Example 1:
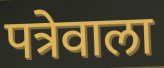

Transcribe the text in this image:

पत्रेवाला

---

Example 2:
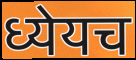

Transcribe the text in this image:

ध्येयच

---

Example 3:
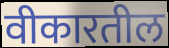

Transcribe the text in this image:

वीकारतील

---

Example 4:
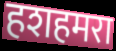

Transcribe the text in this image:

हशहमरा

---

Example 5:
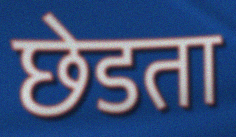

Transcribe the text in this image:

छेडता